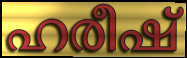
ഹരീഷ്